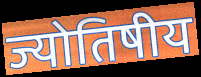
ज्योतिषीय